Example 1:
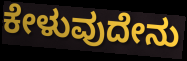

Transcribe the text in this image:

ಕೇಳುವುದೇನು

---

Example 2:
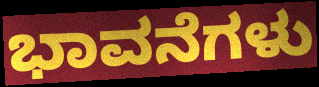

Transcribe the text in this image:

ಭಾವನೆಗಳು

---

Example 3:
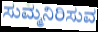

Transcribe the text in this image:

ಸುಮ್ಮನಿರಿಸುವ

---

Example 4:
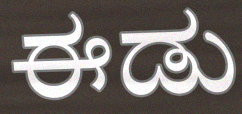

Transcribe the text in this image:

ಈಡು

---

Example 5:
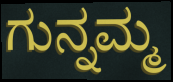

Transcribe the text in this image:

ಗುನ್ನಮ್ಮ